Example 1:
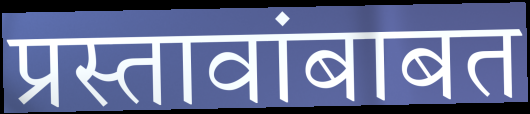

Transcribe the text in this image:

प्रस्तावांबाबत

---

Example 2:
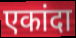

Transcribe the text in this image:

एकांदा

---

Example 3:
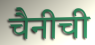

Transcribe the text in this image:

चैनीची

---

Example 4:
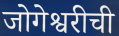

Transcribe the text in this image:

जोगेश्वरीची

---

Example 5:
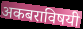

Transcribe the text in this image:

अकबराविषयी